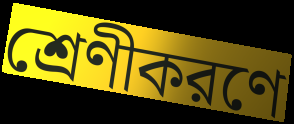
শ্রেণীকরণে